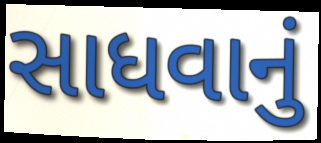
સાધવાનું